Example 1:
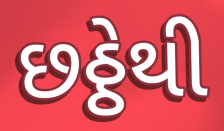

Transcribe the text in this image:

છઠ્ઠેથી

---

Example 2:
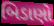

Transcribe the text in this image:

બિડાણો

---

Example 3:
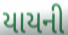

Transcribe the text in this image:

યાયની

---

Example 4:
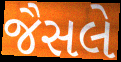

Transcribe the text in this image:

જૈસલે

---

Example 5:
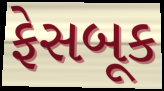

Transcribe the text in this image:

ફેસબૂક